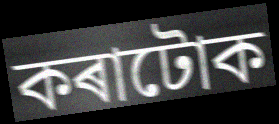
কৰাটোক